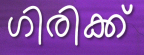
ഗിരിക്ക്